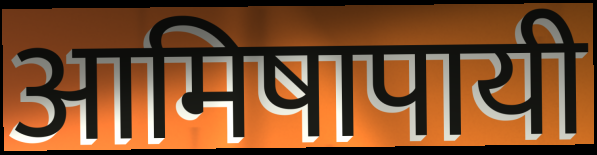
आमिषापायी